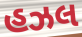
હઝલ